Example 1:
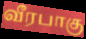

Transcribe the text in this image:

வீரபாகு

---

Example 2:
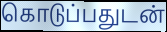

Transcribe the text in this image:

கொடுப்பதுடன்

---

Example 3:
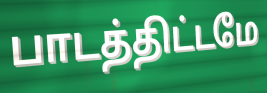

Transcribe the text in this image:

பாடத்திட்டமே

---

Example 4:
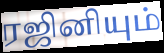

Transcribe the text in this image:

ரஜினியும்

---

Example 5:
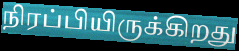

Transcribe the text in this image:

நிரப்பியிருக்கிறது